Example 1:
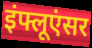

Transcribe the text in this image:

इंफ्लूएंसर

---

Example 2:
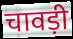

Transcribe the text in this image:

चावड़ी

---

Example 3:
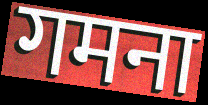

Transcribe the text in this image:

गमना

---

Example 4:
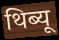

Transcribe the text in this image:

थिब्यू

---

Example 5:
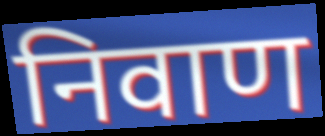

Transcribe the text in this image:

निवाण